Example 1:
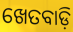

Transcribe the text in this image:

ଖେତବାଡ଼ି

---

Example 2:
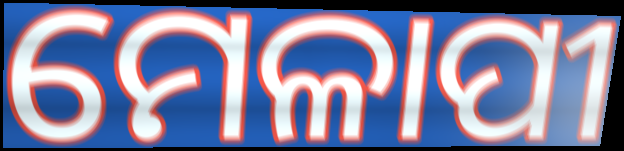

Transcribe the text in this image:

ମେଳାପୀ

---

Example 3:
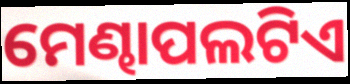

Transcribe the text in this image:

ମେଣ୍ଢାପଲଟିଏ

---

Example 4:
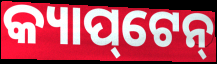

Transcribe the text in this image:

କ୍ୟାପ୍‌ଟେନ୍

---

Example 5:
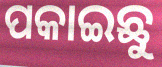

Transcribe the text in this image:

ପକାଇଛୁ